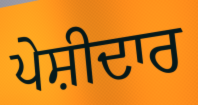
ਪੇਸ਼ੀਦਾਰ